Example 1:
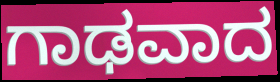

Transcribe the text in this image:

ಗಾಢವಾದ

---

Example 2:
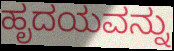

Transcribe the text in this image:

ಹೃದಯವನ್ನು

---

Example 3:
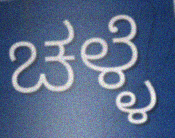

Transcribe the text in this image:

ಚಳ್ಳೆ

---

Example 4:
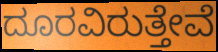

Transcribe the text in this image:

ದೂರವಿರುತ್ತೇವೆ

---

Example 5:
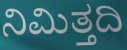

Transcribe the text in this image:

ನಿಮಿತ್ತದಿ